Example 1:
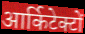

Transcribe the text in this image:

आर्किटेक्टों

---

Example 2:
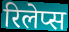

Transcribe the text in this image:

रिलेप्स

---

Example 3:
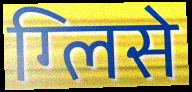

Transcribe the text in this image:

ग्लिसे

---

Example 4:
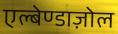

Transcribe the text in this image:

एल्बेण्डाज़ोल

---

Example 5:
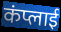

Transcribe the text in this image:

कंप्लाई